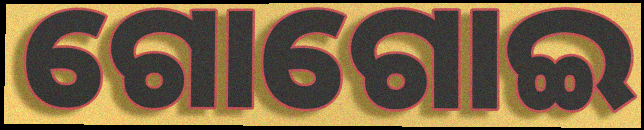
ଗୋଗୋଇ